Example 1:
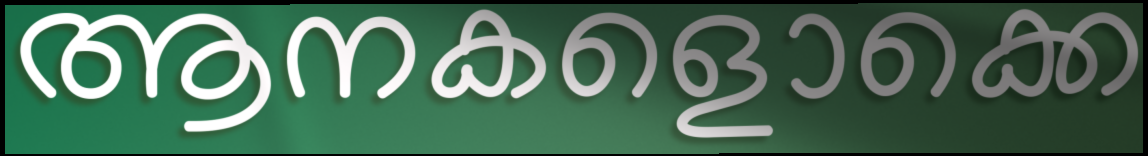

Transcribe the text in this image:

ആനകളൊക്കെ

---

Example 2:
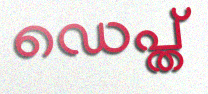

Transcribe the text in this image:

ഡെപ്ത്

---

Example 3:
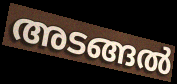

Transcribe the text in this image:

അടങ്ങൽ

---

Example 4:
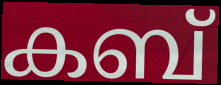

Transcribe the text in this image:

കബ്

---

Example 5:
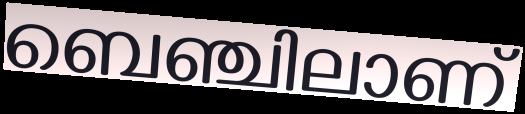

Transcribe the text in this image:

ബെഞ്ചിലാണ്